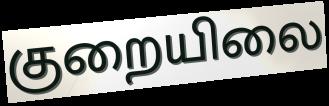
குறையிலை